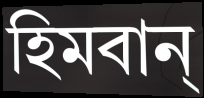
হিমবান্